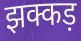
झक्कड़